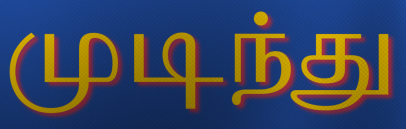
முடிந்து